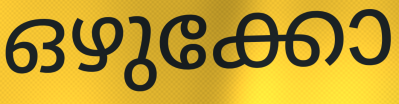
ഒഴുക്കോ